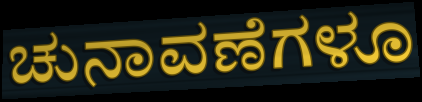
ಚುನಾವಣೆಗಳೂ